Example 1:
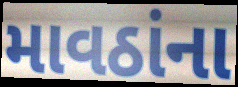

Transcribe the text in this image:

માવઠાંના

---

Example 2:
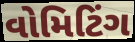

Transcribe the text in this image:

વોમિટિંગ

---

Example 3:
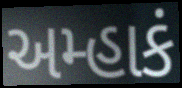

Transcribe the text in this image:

અમ્હાકં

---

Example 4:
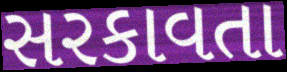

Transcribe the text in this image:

સરકાવતા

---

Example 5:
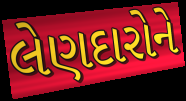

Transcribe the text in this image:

લેણદારોને